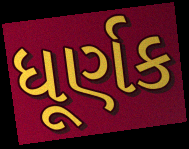
ધૂર્ણક